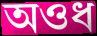
অওধ